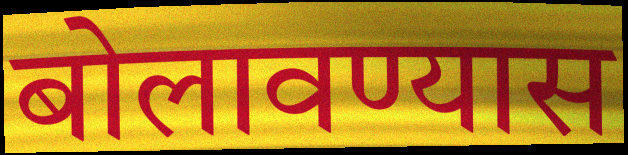
बोलावण्यास